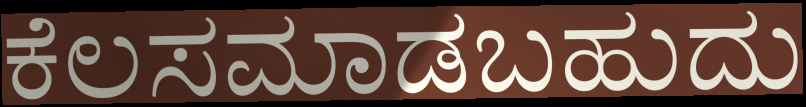
ಕೆಲಸಮಾಡಬಹುದು